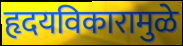
हृदयविकारामुळे